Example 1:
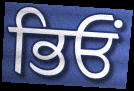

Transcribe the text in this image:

ਭਿਓਂ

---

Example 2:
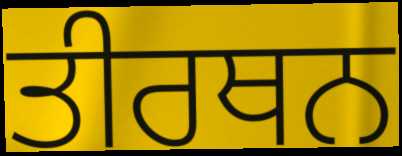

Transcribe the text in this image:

ਤੀਰਥਨ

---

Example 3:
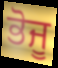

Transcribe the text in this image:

ਭੋਜੂ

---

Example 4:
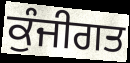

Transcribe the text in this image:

ਕੁੰਜੀਗਤ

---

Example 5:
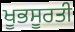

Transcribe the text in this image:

ਖੂਭਸੂਰਤੀ